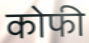
कोफी